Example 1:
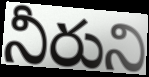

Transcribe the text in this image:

నీరుని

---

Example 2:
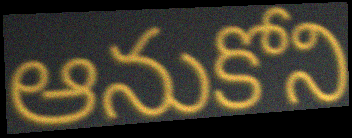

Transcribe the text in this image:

ఆనుకోని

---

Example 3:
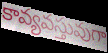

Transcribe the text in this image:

కావ్యవస్తువుగా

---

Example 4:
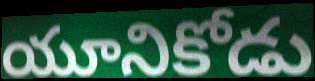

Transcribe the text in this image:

యూనికోడు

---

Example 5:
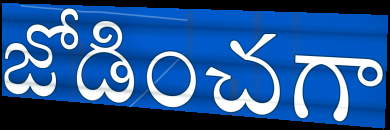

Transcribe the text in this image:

జోడించగా